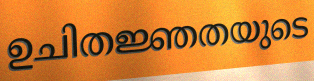
ഉചിതജ്ഞതയുടെ